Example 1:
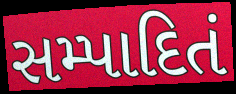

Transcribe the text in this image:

સમ્પાદિતં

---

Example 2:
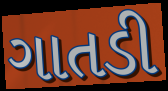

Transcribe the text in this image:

ગાતડી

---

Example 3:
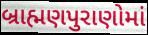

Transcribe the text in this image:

બ્રાહ્મણપુરાણોમાં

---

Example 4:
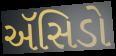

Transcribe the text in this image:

ઍસિડો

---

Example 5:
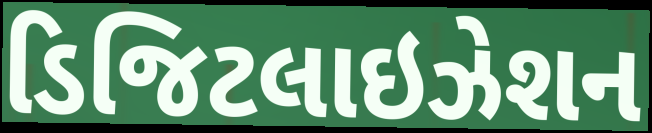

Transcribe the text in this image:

ડિજિટલાઇઝેશન